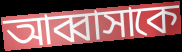
আব্বাসাকে